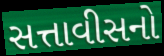
સત્તાવીસનો